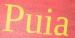
Puia